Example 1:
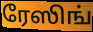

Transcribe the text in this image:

ரேஸிங்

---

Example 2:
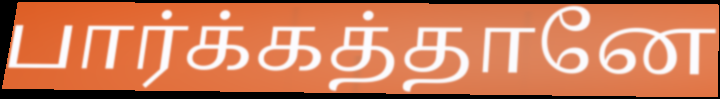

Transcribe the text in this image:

பார்க்கத்தானே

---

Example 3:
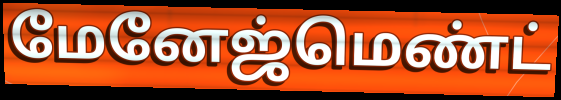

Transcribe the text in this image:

மேனேஜ்மெண்ட்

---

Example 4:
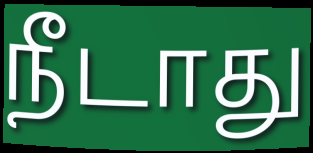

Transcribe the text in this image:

நீடாது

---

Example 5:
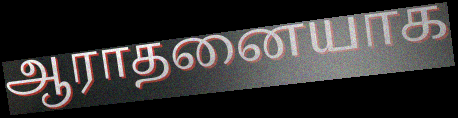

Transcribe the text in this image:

ஆராதனையாக